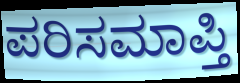
ಪರಿಸಮಾಪ್ತಿ